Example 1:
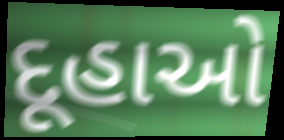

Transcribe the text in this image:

દૂહાઓ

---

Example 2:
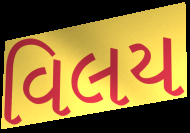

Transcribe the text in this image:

વિલય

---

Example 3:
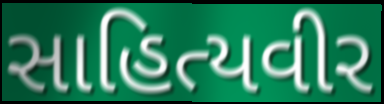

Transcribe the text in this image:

સાહિત્યવીર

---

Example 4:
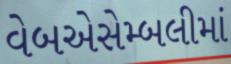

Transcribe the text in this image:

વેબએસેમ્બલીમાં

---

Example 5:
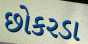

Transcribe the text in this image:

છોકરડા